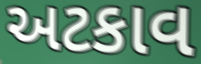
અટકાવ